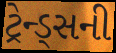
ટ્રેન્ડ્સની